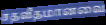
சதவீதமானவை